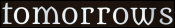
tomorrows